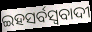
ଇହସର୍ବସ୍ୱବାଦୀ